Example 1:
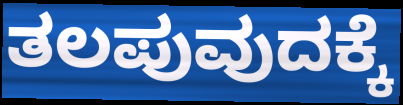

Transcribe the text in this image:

ತಲಪುವುದಕ್ಕೆ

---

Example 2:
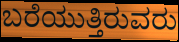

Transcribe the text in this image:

ಬರೆಯುತ್ತಿರುವರು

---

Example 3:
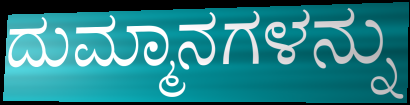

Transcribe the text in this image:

ದುಮ್ಮಾನಗಳನ್ನು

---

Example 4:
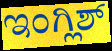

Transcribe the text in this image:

ಇಂಗ್ಲಿಶ್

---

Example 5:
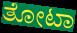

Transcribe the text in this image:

ತೋಟಾ